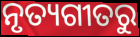
ନୃତ୍ୟଗୀତରୁ